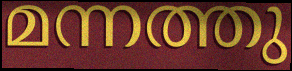
മന്നത്തു